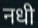
नधी